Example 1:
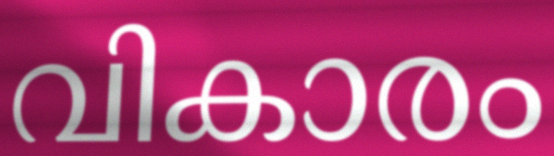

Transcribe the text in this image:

വികാരം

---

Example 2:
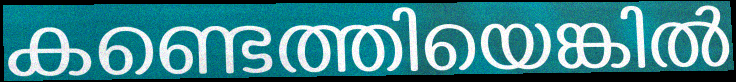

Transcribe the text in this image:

കണ്ടെത്തിയെങ്കിൽ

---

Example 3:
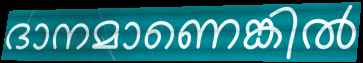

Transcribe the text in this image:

ദാനമാണെങ്കിൽ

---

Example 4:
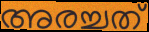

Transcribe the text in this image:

അരച്ചത്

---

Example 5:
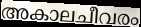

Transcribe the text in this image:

അകാലചീവരം